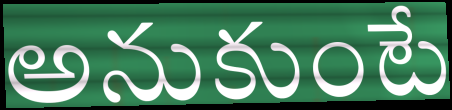
అనుకుంటే